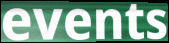
events